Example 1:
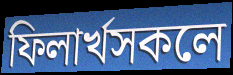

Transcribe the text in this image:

ফিলাৰ্খসকলে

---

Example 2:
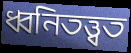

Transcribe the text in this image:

ধ্বনিতত্ত্বত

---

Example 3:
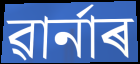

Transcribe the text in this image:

ৱাৰ্নাৰ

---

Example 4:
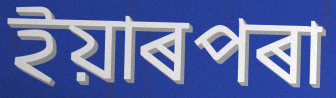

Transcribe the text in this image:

ইয়াৰপৰা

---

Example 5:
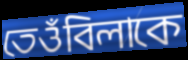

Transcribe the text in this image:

তেওঁবিলাকে